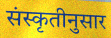
संस्कृतीनुसार